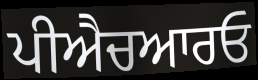
ਪੀਐਚਆਰਓ